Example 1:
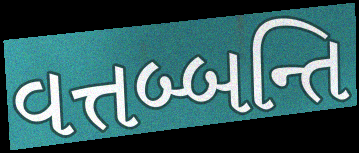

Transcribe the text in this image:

વત્તબ્બન્તિ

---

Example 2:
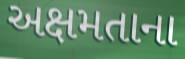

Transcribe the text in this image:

અક્ષમતાના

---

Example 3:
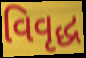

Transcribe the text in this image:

વિવૃદ્ધ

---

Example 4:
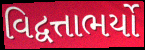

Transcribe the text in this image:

વિદ્વત્તાભર્યો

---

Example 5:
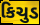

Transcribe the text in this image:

કિચુડ